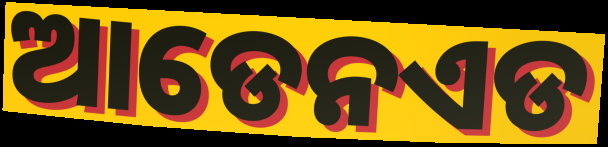
ଆଡେନଏଡ